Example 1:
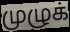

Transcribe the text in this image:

முழுக்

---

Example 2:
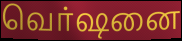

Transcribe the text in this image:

வெர்ஷனை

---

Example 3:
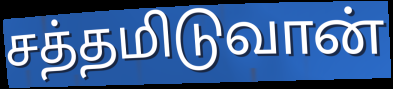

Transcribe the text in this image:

சத்தமிடுவான்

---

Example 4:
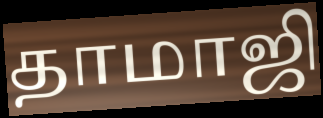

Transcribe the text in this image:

தாமாஜி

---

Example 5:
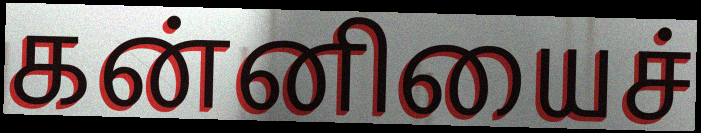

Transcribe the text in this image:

கன்னியைச்